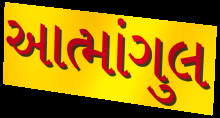
આત્માંગુલ